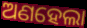
ଅଣହେଲା